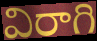
విరాగి